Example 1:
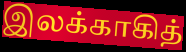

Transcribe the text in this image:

இலக்காகித்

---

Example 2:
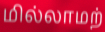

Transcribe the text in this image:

மில்லாமற்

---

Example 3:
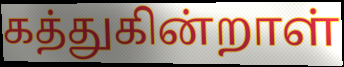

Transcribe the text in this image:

கத்துகின்றாள்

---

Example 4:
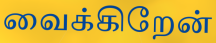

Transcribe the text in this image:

வைக்கிறேன்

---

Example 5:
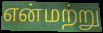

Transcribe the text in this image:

என்மற்று